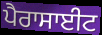
ਪੈਰਾਸਾਈਟ